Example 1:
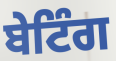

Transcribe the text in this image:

ਬੇਟਿੰਗ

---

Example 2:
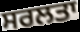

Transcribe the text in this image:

ਸਰਲਤਾ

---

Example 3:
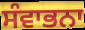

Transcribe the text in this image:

ਸੰਵਾਭਨਾ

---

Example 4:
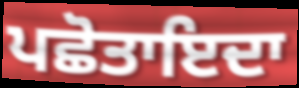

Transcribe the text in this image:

ਪਛੋਤਾਇਦਾ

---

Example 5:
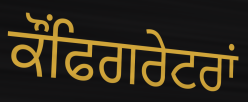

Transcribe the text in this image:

ਕੌਂਫਿਗਰੇਟਰਾਂ